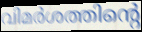
വിമർശത്തിന്റെ